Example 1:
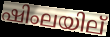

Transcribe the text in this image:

ഷിംലയില്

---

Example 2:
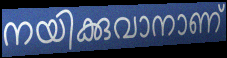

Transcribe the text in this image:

നയിക്കുവാനാണ്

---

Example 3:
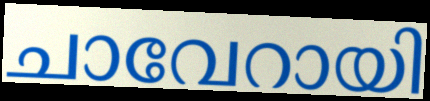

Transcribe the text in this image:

ചാവേറായി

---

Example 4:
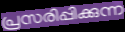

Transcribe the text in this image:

പ്രസരിപ്പിക്കുന്ന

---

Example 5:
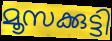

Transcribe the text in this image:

മൂസക്കുട്ടി